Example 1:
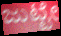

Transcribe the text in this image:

ಜುಟ್ಟೇ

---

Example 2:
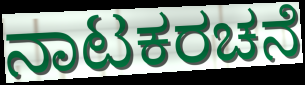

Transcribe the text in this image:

ನಾಟಕರಚನೆ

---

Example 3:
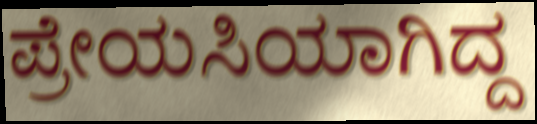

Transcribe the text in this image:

ಪ್ರೇಯಸಿಯಾಗಿದ್ದ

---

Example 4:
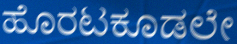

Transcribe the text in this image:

ಹೊರಟಕೂಡಲೇ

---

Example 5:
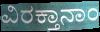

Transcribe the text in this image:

ವಿರಕ್ತಾನಾಂ